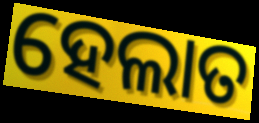
ହେଲାତ